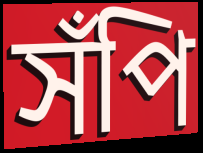
সঁপি